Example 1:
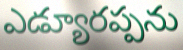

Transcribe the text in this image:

ఎడ్యూరప్పను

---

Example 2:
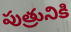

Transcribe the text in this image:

పుత్రునికి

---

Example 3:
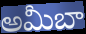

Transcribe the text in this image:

అమీబా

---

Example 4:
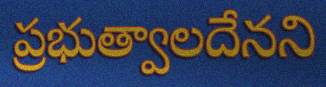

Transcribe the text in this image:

ప్రభుత్వాలదేనని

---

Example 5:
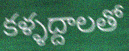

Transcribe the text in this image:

కళ్ళద్దాలతో